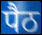
पैठ